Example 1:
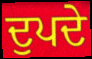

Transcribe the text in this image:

ਦੁਪਦੇ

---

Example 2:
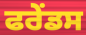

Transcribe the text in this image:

ਫਰੇਂਡਸ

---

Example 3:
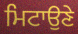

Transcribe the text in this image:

ਮਿਟਾਉਣੇ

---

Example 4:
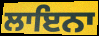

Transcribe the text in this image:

ਲਾਇਨਾ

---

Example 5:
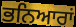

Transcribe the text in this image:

ਭਨਿਆਰਾਂ